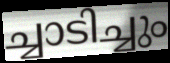
ച്ചാടിച്ചും